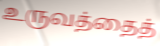
உருவத்தைத்